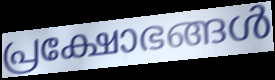
പ്രക്ഷോഭങ്ങൾ